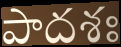
పాదశః